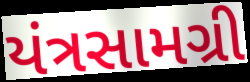
યંત્રસામગ્રી